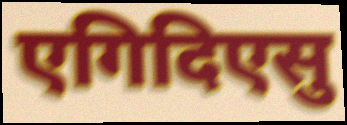
एगिदिएसु